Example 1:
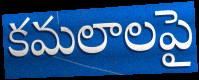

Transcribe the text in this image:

కమలాలపై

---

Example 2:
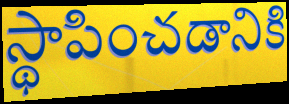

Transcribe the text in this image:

స్థాపించడానికి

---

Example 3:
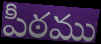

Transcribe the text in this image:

పీఠము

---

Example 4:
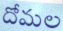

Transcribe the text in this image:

దోమల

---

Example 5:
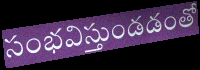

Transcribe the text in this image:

సంభవిస్తుండడంతో